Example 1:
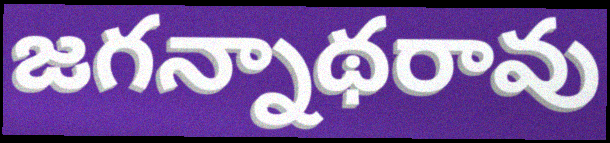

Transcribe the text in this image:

జగన్నాథరావు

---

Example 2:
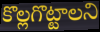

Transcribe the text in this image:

కొల్లగొట్టాలని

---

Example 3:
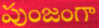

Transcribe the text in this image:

పుంజంగా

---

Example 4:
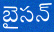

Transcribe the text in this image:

బైసన్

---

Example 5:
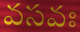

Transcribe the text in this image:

వసవః